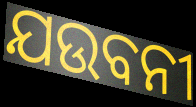
ଯଉବନୀ